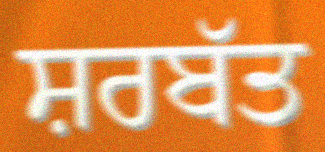
ਸ਼ਰਬੱਤ